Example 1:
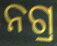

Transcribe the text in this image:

ନଗ୍ର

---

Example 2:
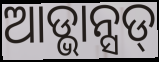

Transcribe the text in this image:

ଆଡ୍ଭାନ୍ସଡ୍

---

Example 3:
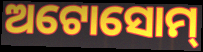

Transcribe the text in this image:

ଅଟୋସୋମ୍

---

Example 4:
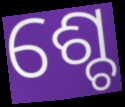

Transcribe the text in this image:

ଶ୍ଚେ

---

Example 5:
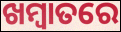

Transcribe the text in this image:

ଖମ୍ବାତରେ